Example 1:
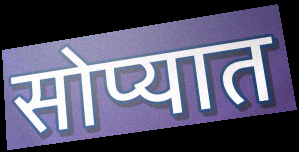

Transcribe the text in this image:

सोप्यात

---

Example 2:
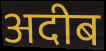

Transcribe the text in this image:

अदीब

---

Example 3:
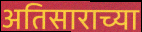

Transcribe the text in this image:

अतिसाराच्या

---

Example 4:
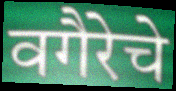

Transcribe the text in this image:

वगैरेचे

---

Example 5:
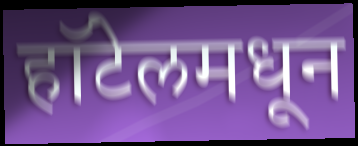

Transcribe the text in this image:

हॉटेलमधून